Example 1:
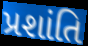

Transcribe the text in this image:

પ્રશાંતિ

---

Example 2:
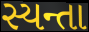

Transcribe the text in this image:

સ્યન્તા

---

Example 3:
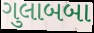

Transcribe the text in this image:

ગુલાબબા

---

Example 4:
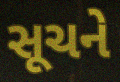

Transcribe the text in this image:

સૂચને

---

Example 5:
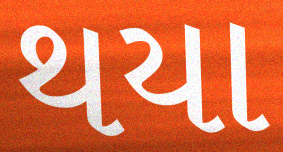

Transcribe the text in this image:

થયા